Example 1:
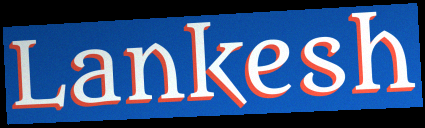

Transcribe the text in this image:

Lankesh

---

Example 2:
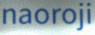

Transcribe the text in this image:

naoroji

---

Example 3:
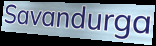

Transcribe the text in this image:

Savandurga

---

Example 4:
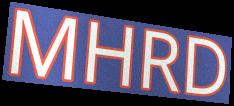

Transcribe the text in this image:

MHRD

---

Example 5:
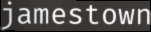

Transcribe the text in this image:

jamestown